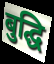
बुद्घि